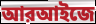
আরআইজে